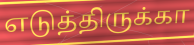
எடுத்திருக்கா